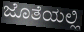
ಜೊತೆಯಲ್ಲಿ